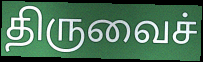
திருவைச்